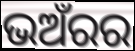
ଭଅଁରର